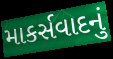
માકર્સવાદનું